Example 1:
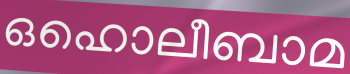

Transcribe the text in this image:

ഒഹൊലീബാമ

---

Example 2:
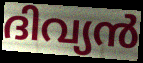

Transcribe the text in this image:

ദിവ്യൻ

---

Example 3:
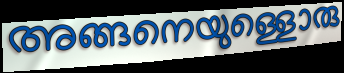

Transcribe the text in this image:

അങ്ങനെയുള്ളൊരു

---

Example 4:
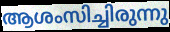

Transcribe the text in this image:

ആശംസിച്ചിരുന്നു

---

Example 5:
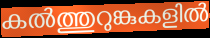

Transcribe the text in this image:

കൽത്തുറുങ്കുകളിൽ